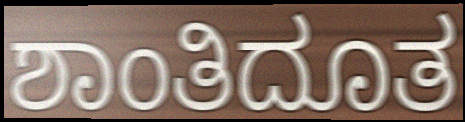
ಶಾಂತಿದೂತ